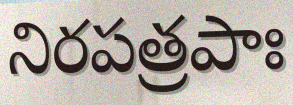
నిరపత్రపాః